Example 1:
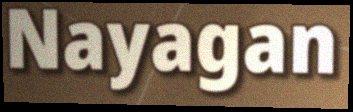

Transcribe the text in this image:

Nayagan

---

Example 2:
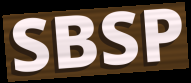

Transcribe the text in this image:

SBSP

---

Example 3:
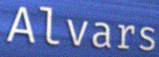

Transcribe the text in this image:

Alvars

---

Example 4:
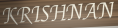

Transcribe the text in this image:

KRISHNAN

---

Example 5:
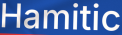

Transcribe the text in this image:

Hamitic